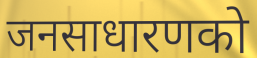
जनसाधारणको